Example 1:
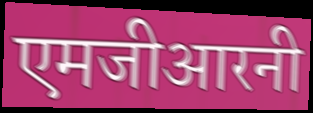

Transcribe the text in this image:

एमजीआरनी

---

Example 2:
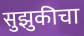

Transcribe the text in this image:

सुझुकीचा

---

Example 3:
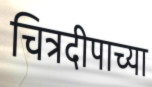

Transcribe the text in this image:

चित्रदीपाच्या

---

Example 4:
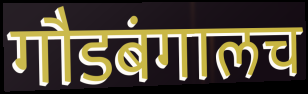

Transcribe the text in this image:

गौडबंगालच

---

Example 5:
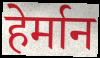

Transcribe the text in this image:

हेर्मान